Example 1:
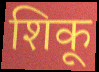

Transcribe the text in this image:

शिकू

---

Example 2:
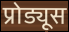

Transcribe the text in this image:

प्रोड्यूस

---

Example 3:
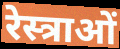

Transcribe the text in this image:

रेस्त्राओं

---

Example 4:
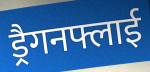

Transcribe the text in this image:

ड्रैगनफ्लाई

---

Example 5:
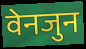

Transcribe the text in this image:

वेनजुन